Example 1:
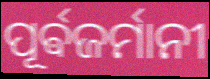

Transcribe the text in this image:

ପୂର୍ଵଜର୍ମାନୀ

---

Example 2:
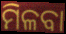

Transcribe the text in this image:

ମିଳବା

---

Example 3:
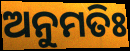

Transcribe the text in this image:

ଅନୁମତିଃ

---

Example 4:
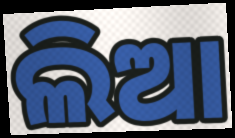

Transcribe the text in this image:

ଲିଆ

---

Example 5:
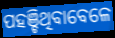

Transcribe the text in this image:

ପହଞ୍ଚିଥିବାବେଳେ